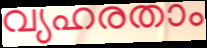
വ്യഹരതാം